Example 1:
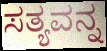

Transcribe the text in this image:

ಸತ್ಯವನ್ನ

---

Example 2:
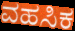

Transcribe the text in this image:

ವಹಸಿಕ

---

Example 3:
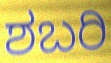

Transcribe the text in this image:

ಶಬರಿ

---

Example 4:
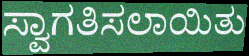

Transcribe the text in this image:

ಸ್ವಾಗತಿಸಲಾಯಿತು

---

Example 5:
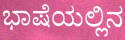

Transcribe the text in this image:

ಭಾಷೆಯಲ್ಲಿನ